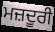
ਮਜ਼ਦੂਰੀ